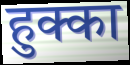
हुक्का